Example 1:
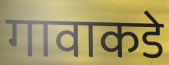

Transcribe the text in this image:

गावाकडे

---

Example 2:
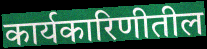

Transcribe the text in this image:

कार्यकारिणीतील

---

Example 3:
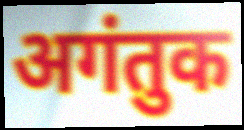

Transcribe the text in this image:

अगंतुक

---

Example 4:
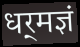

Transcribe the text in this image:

धर्मज्ञं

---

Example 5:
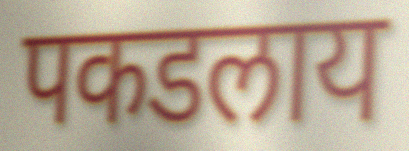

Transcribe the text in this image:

पकडलाय